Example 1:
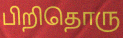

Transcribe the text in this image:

பிறிதொரு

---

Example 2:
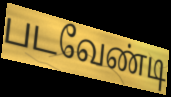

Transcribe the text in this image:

படவேண்டி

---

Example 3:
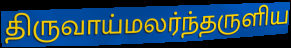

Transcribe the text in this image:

திருவாய்மலர்ந்தருளிய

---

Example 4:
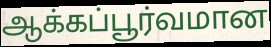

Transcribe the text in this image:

ஆக்கப்பூர்வமான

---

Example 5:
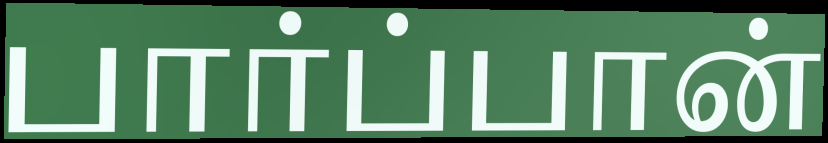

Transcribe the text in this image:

பார்ப்பான்